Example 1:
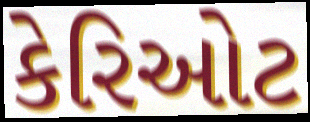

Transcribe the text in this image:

કેરિઓટ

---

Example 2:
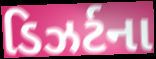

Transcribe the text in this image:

ડિઝર્ટના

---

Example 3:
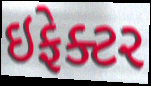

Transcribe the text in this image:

ઇફેક્ટર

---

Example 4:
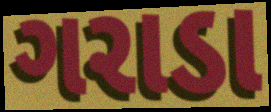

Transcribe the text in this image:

ગરાડા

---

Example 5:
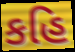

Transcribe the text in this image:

કહિ